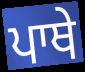
ਪਾਥੇ